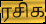
ரசிக